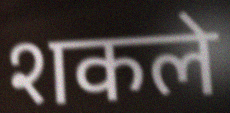
शकले